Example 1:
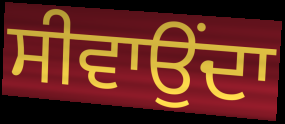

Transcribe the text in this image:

ਸੀਵਾਉਂਦਾ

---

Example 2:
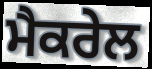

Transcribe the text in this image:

ਮੈਕਰੇਲ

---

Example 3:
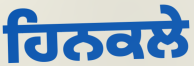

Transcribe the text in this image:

ਹਿਨਕਲੇ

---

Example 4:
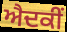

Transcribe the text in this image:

ਐਦਕੀਂ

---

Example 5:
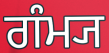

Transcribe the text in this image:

ਗੰਮ੍ਯ